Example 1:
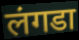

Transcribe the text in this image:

लंगडा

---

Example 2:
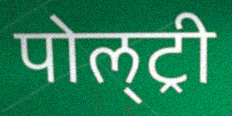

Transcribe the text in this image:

पोल्ट्री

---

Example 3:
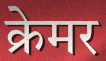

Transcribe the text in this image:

क्रेमर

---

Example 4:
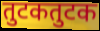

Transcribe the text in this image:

तुटकतुटक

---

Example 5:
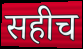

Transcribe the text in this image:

सहीच